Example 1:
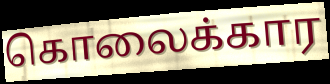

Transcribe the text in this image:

கொலைக்கார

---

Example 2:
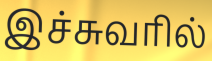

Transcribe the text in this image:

இச்சுவரில்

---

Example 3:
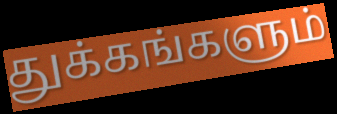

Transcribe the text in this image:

துக்கங்களும்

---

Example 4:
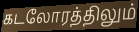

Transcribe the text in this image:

கடலோரத்திலும்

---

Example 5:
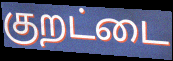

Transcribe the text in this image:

குறட்டை